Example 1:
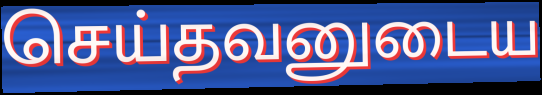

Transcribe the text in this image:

செய்தவனுடைய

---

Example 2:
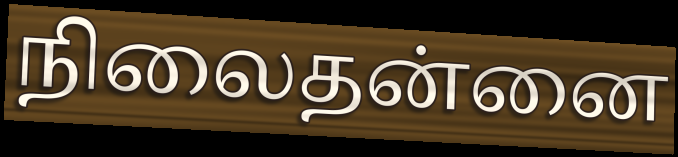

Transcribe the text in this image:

நிலைதன்னை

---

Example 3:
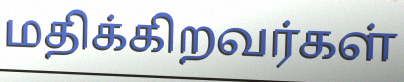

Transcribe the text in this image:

மதிக்கிறவர்கள்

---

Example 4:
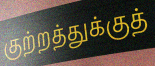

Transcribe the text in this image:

குற்றத்துக்குத்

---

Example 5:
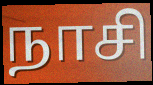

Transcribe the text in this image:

நாசி